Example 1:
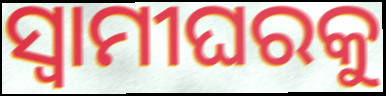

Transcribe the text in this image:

ସ୍ୱାମୀଘରକୁ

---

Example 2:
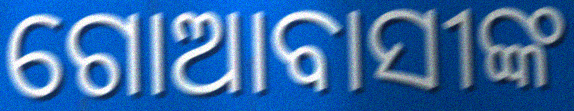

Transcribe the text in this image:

ଗୋଆବାସୀଙ୍କ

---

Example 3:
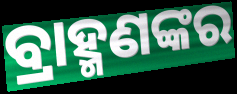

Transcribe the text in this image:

ବ୍ରାହ୍ମଣଙ୍କର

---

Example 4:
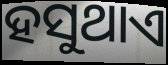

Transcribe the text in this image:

ହସୁଥାଏ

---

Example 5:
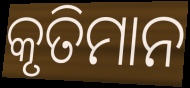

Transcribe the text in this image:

କୃତିମାନ